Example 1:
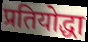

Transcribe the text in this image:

प्रतियोद्धा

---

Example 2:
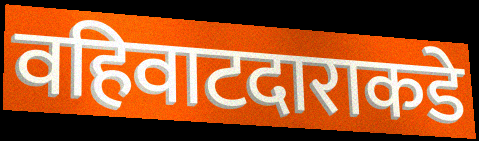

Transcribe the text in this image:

वहिवाटदाराकडे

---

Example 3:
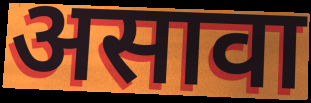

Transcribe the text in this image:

असावा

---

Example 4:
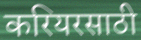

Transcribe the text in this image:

करियरसाठी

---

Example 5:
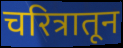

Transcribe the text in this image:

चरित्रातून